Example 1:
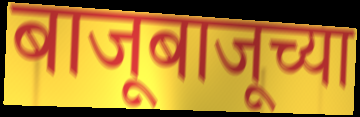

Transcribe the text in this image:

बाजूबाजूच्या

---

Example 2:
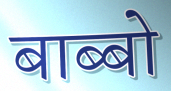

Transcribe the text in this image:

बाब्बो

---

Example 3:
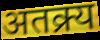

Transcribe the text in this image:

अतक्र्य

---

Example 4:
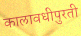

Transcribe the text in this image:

कालावधीपुरती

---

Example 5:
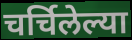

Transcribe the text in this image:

चर्चिलेल्या